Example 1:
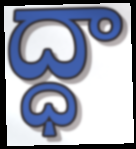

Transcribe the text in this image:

ద్ధా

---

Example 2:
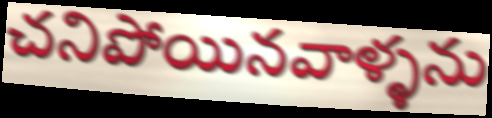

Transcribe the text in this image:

చనిపోయినవాళ్ళను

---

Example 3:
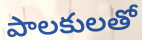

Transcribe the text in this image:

పాలకులతో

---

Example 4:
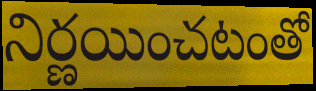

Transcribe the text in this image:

నిర్ణయించటంతో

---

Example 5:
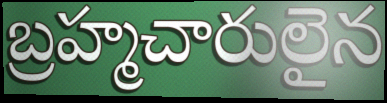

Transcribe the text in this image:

బ్రహ్మచారులైన